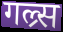
गल्र्स